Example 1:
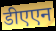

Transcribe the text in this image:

डीएएन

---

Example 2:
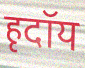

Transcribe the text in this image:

हृदॉय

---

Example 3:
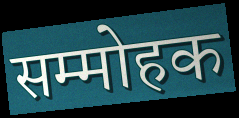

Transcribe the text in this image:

सम्मोहक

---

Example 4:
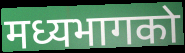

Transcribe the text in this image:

मध्यभागको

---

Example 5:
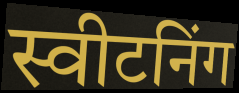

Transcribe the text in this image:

स्वीटनिंग